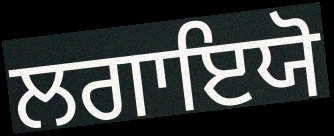
ਲਗਾਇਯੋ